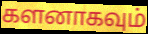
களனாகவும்